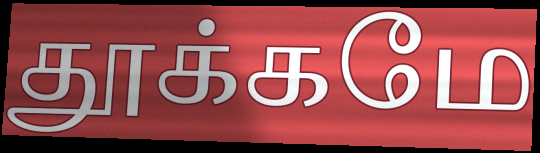
தூக்கமே